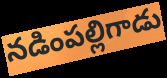
నడింపల్లిగాడు